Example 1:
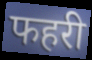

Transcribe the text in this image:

फहरी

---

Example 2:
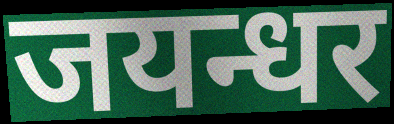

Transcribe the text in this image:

जयन्धर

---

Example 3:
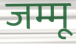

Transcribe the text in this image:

जम्‍मू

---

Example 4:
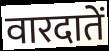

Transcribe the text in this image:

वारदातें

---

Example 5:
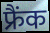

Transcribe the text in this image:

फ्रैंक